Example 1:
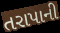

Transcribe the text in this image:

તરાપાની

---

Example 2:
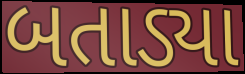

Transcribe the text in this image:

બતાડ્યા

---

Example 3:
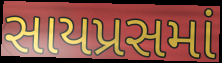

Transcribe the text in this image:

સાયપ્રસમાં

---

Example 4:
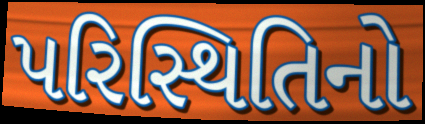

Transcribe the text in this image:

પરિસ્થિતિનો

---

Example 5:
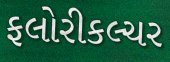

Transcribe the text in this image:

ફલોરીકલ્ચર